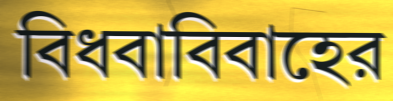
বিধবাবিবাহের